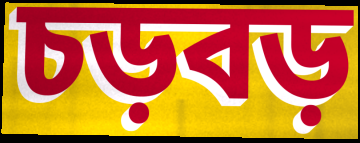
চড়বড়